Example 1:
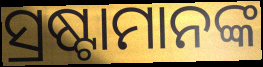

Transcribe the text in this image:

ସ୍ରଷ୍ଟାମାନଙ୍କ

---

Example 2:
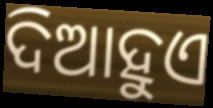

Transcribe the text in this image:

ଦିଆହୁଏ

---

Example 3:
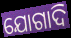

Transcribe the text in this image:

ଯୋଗାଦି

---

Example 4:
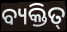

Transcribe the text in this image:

ବ୍ୟକ୍ତିତ୍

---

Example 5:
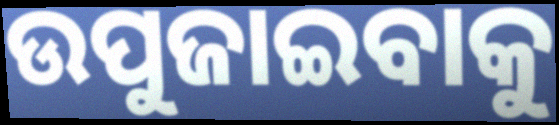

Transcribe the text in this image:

ଉପୁଜାଇବାକୁ